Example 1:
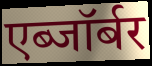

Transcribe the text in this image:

एब्जॉर्बर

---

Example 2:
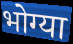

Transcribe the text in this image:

भोग्या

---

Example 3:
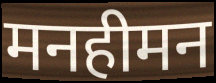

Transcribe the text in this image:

मनहीमन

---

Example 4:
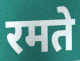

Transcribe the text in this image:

रमते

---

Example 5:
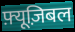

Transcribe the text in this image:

फ़्यूज़िबल